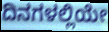
ದಿನಗಳಲ್ಲಿಯೇ